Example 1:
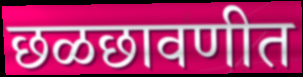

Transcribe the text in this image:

छळछावणीत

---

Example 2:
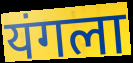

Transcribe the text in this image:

यंगला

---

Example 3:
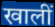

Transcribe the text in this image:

खालीं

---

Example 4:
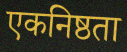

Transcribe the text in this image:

एकनिष्ठता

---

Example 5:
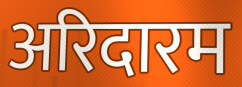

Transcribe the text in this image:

अरिदारम